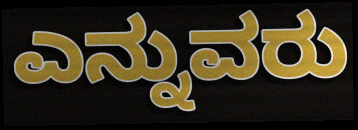
ಎನ್ನುವರು